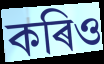
কৰিও